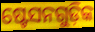
ଷ୍ଟେସନଗୁଡ଼ିକ